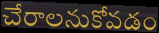
చేరాలనుకోవడం